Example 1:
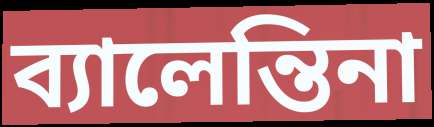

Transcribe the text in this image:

ব্যালেন্তিনা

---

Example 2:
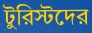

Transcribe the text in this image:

টুরিস্টদের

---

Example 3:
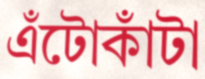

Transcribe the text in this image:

এঁটোকাঁটা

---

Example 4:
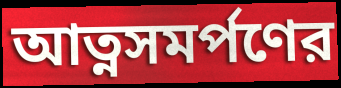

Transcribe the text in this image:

আত্নসমর্পণের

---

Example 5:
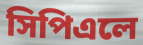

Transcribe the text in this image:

সিপিএলে